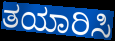
ತಯಾರಿಸಿ